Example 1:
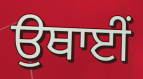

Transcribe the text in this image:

ਉਥਾਈਂ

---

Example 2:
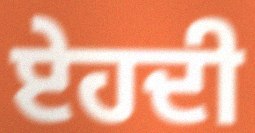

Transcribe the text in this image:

ਏਹਦੀ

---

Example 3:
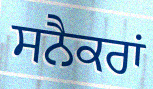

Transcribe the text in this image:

ਸਨੈਕਰਾਂ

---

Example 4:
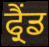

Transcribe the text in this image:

ਫ੍ਰੈਂਡ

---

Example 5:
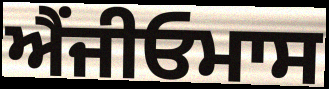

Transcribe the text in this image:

ਐਂਜੀਓਮਾਸ